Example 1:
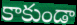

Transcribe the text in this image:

కాకుండా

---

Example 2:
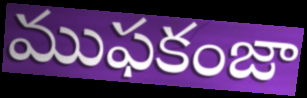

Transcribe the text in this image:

ముఫకంజా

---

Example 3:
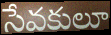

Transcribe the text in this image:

సేవకులూ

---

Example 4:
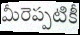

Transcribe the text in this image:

మీరెప్పటికీ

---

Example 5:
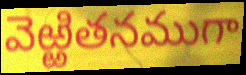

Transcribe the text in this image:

వెఱ్ఱితనముగా